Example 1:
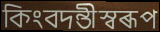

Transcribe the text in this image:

কিংবদন্তীস্বৰূপ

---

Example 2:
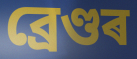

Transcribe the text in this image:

ব্ৰেণ্ডৰ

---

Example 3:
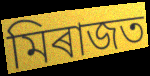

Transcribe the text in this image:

মিৰাজত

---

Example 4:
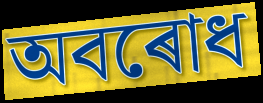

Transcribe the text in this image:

অবৰোধ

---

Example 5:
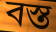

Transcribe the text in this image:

বস্ত